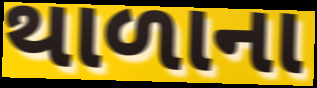
થાળાના